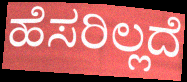
ಹೆಸರಿಲ್ಲದೆ